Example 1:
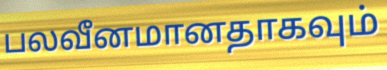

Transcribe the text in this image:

பலவீனமானதாகவும்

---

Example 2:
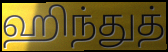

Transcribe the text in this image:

ஹிந்துத்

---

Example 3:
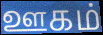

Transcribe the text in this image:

ஊகம்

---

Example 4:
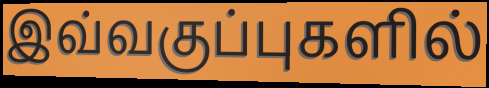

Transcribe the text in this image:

இவ்வகுப்புகளில்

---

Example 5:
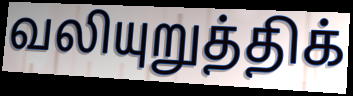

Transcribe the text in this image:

வலியுறுத்திக்